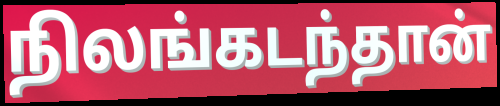
நிலங்கடந்தான்